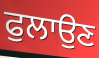
ਫੁਲਾਉਣ